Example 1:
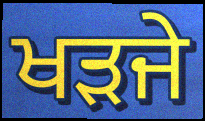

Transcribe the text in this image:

ਖੜਜੇ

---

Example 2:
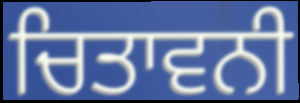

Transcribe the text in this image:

ਚਿਤਾਵਨੀ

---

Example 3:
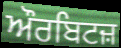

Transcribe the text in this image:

ਔਰਬਿਟਜ਼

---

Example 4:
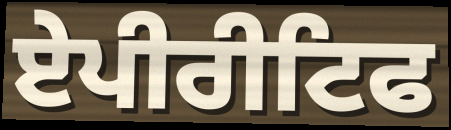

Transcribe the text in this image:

ਏਪੀਰੀਟਿਫ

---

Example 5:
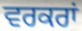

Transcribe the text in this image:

ਵਰਕਰਾਂ